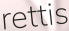
rettis